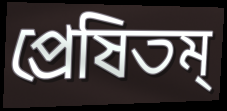
প্রেষিতম্